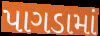
પાગડામાં